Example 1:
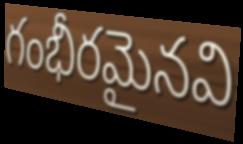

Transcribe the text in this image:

గంభీరమైనవి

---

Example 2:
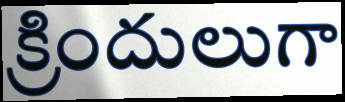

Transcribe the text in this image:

క్రిందులుగా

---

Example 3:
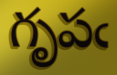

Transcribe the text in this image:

గృపఁ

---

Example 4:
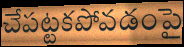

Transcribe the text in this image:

చేపట్టకపోవడంపై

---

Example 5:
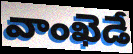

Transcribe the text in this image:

వాంఖెడే